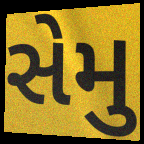
સેમુ